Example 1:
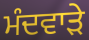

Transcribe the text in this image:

ਮੰਦਵਾੜੇ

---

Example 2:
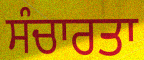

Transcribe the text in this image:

ਸੰਚਾਰਤਾ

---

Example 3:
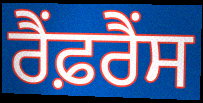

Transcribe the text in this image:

ਰੈਂਫ਼ਰੈਂਸ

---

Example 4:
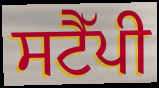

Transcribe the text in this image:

ਸਟੈੱਪੀ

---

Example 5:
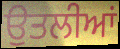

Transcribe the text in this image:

ਉਤਲੀਆਂ